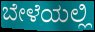
ಬೇಳೆಯಲ್ಲಿ